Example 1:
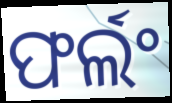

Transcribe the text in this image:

ଫର୍ଲଂ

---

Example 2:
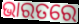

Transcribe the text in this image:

ଭାରତରେ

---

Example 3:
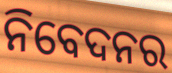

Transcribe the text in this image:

ନିବେଦନର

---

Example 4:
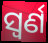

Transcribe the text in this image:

ସ୍ୱର୍ଣ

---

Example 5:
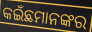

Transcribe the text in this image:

କଇଁଛମାନଙ୍କର